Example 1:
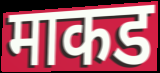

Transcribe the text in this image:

माकड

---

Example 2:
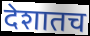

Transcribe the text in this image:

देशातच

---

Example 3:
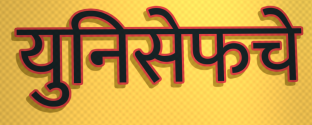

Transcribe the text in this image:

युनिसेफचे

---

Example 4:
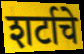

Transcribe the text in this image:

शर्टाचे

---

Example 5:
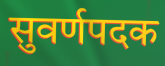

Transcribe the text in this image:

सुवर्णपदक